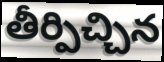
తీర్పిచ్చిన